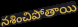
నశించిపోతాయి